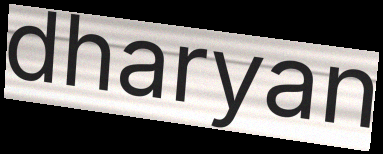
dharyan